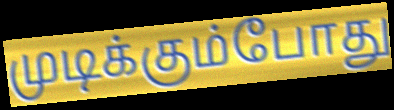
முடிக்கும்போது